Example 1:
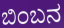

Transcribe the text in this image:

ಬಿಂಬನ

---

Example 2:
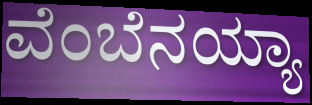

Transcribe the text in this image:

ವೆಂಬೆನಯ್ಯಾ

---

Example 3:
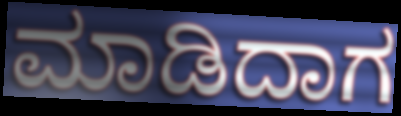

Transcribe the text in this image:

ಮಾಡಿದಾಗ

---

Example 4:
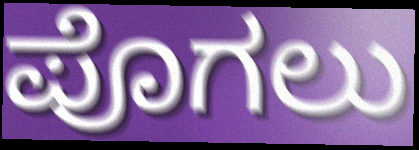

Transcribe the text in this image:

ಪೊಗಲು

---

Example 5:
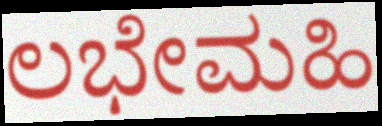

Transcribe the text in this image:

ಲಭೇಮಹಿ